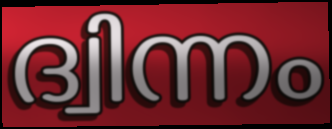
ദ്വിന്നം